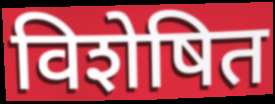
विशेषित